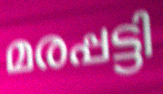
മരപ്പട്ടി